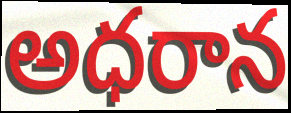
అధరాన